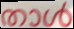
താൾ